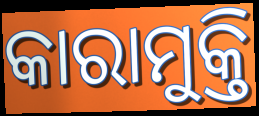
କାରାମୁକ୍ତି